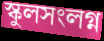
স্কুলসংলগ্ন